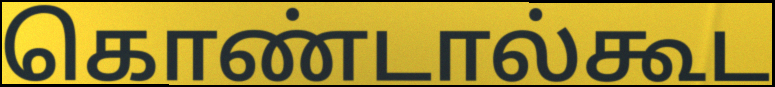
கொண்டால்கூட